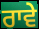
ਰਾਵੇ